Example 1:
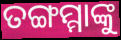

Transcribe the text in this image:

ତଙ୍ଗମ୍ମାଙ୍କୁ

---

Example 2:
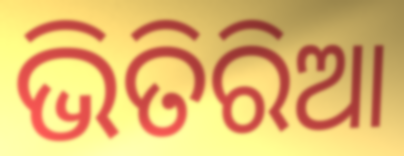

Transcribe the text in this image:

ଭିତିରିଆ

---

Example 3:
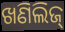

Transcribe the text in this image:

ଖଣିଲିଜ୍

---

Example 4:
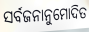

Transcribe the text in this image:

ସର୍ବଜନାନୁମୋଦିତ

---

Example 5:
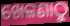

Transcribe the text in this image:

ଖେଳଣାଠୁ